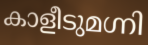
കാളീടുമഗ്നി